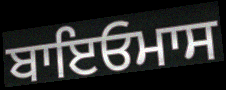
ਬਾਇਓਮਾਸ